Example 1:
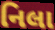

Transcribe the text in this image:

નિલા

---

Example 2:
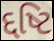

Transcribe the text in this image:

દ્દષ્ટિ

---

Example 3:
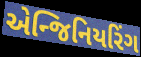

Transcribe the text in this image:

એન્જિનિયરિંગ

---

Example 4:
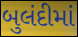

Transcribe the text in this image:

બુલંદીમાં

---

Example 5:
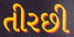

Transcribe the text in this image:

તીરછી